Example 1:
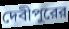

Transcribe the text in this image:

দেবীপুরের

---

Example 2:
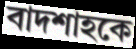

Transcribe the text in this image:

বাদশাহকে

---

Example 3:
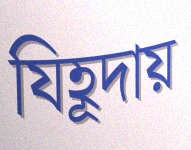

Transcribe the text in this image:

যিহূদায়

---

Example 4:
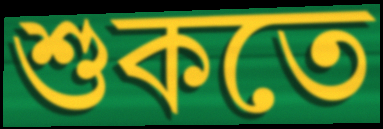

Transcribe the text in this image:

শুকতে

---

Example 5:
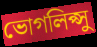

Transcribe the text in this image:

ভোগলিপ্সু